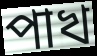
পাখ